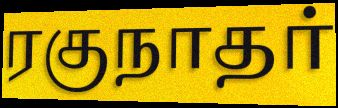
ரகுநாதர்